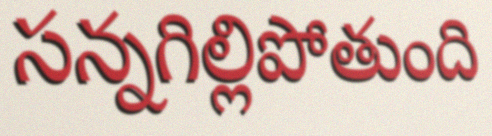
సన్నగిల్లిపోతుంది